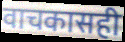
वाचकासही